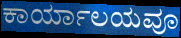
ಕಾರ್ಯಾಲಯವೂ